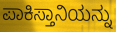
ಪಾಕಿಸ್ತಾನಿಯನ್ನು